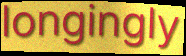
longingly